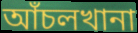
আঁচলখানা